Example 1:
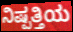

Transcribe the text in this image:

ನಿಷ್ಪತ್ತಿಯ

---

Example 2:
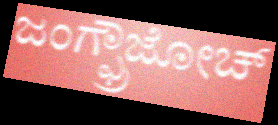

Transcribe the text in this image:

ಜಂಗ್ಫ್ರೌಜೋಚ್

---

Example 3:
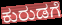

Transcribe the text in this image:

ಕುರುಡಗೆ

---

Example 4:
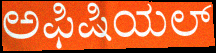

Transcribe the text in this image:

ಅಫಿಷಿಯಲ್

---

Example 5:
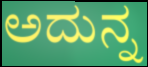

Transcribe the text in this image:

ಅದುನ್ನ